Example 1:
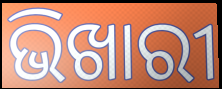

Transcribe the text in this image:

ଭିଖାରୀ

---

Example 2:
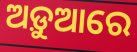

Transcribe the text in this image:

ଅଡ଼ୁଆରେ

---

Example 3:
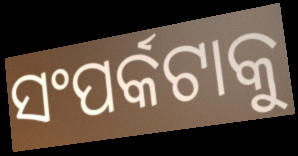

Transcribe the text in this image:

ସଂପର୍କଟାକୁ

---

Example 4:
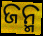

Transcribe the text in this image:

ଜନ୍ମ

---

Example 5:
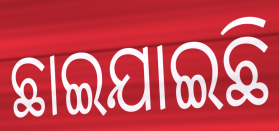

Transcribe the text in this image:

ଛାଇଯାଇଛି